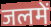
जलमें